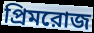
প্রিমরোজ